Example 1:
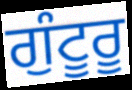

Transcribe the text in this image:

ਗੁੰਟੂਰੂ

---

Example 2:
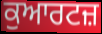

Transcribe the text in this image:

ਕੁਆਰਟਜ਼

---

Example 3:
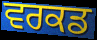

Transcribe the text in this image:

ਵਰਕਡ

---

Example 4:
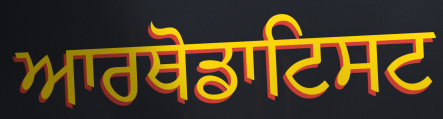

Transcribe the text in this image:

ਆਰਥੋਡਾਟਿਸਟ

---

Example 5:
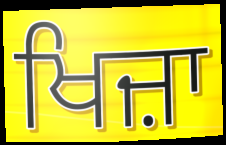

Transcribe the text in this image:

ਖਿਜ਼ਾ